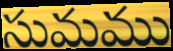
సుమము